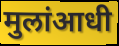
मुलांआधी